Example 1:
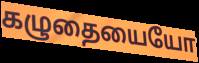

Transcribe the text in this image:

கழுதையையோ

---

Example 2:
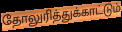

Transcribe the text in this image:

தோலுரித்துக்காட்டும்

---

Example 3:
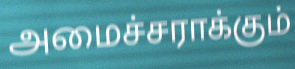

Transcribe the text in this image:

அமைச்சராக்கும்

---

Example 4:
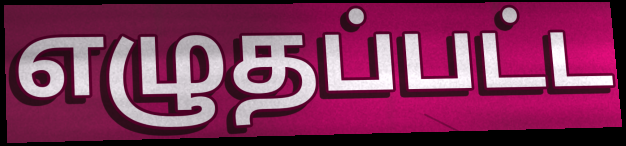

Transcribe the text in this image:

எழுதப்பட்ட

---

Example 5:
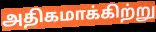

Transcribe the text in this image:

அதிகமாக்கிற்று